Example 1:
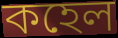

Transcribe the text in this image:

কহেল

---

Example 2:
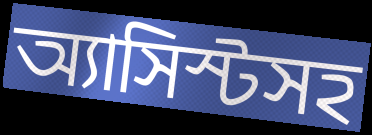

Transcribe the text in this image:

অ্যাসিস্টসহ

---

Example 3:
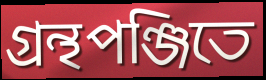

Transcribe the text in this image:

গ্রন্থপঞ্জিতে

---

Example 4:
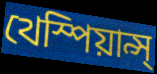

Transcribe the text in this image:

থেস্পিয়ান্স্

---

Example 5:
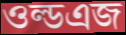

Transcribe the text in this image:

ওল্ডএজ